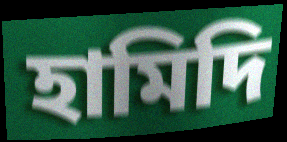
হামিদি